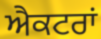
ਐਕਟਰਾਂ